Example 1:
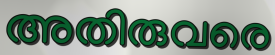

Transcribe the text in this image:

അതിരുവരെ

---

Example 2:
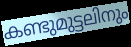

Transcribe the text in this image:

കണ്ടുമുട്ടലിനും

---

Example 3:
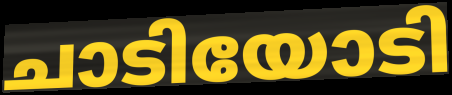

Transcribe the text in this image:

ചാടിയോടി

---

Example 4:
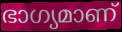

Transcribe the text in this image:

ഭാഗ്യമാണ്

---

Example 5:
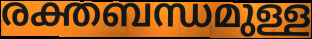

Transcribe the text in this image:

രക്തബന്ധമുള്ള